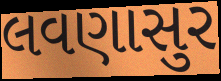
લવણાસુર